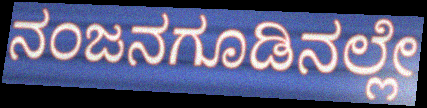
ನಂಜನಗೂಡಿನಲ್ಲೇ